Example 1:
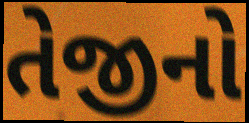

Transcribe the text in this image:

તેજીનો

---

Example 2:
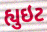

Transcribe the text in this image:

હ્યુઇટ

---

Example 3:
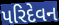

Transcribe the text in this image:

પરિદેવન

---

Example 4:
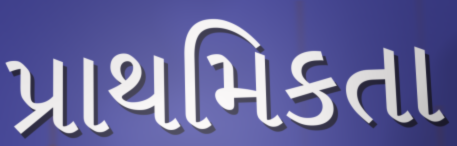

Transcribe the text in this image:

પ્રાથમિકતા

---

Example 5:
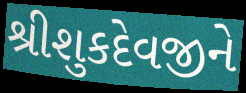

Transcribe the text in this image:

શ્રીશુકદેવજીને